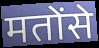
मतोंसे